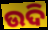
ଉଦି